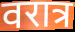
वरात्र